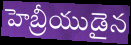
హెబ్రీయుడైన